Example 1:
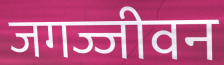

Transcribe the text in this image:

जगज्जीवन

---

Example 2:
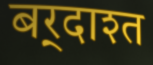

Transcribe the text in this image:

बर्दाश्त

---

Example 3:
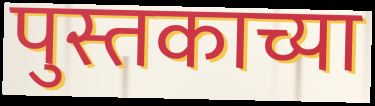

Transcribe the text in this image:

पुस्तकाच्या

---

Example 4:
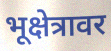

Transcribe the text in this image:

भूक्षेत्रावर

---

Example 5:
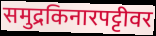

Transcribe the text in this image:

समुद्रकिनारपट्टीवर